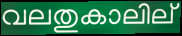
വലതുകാലില്